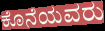
ಕೊನೆಯವರು